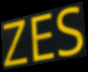
ZES